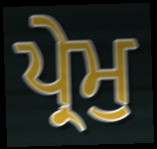
ਪ੍ਰੇਮੁ